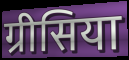
ग्रीसिया